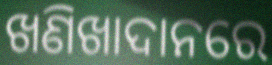
ଖଣିଖାଦାନରେ